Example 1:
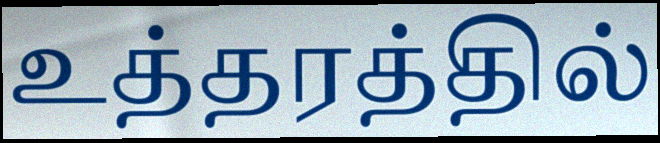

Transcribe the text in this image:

உத்தரத்தில்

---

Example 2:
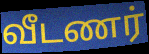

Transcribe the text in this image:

வீடணர்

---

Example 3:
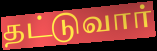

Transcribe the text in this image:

தட்டுவார்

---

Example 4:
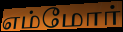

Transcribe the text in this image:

எம்மோர்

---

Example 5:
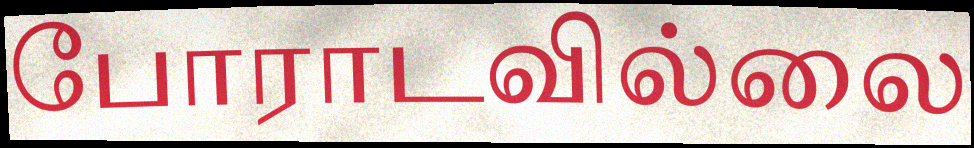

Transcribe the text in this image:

போராடவில்லை